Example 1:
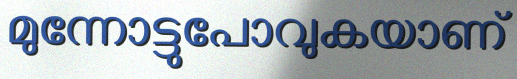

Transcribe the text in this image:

മുന്നോട്ടുപോവുകയാണ്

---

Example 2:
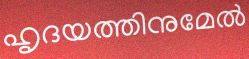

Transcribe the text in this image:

ഹൃദയത്തിനുമേൽ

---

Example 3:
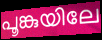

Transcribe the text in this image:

പൂങ്കുയിലേ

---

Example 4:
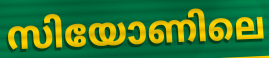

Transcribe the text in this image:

സിയോണിലെ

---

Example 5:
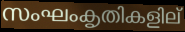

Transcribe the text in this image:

സംഘംകൃതികളില്